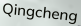
Qingcheng